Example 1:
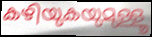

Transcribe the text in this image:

കഴിയുകയുമുള്ളൂ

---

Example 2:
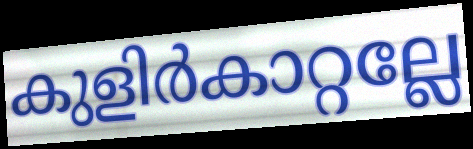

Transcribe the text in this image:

കുളിർകാറ്റല്ലേ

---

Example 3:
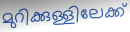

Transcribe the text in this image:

മുറിക്കുള്ളിലേക്ക്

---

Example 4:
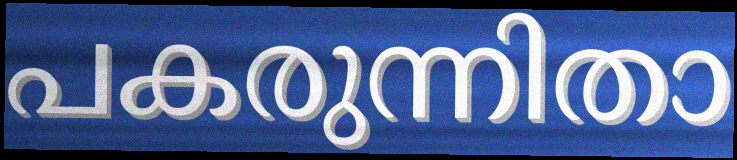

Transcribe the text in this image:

പകരുന്നിതാ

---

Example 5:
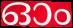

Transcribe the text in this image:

ഓം